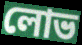
লোভ